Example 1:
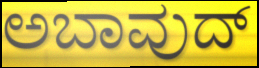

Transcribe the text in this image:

ಅಬಾವುದ್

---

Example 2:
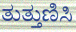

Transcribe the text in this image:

ತುತ್ತುಣಿಸಿ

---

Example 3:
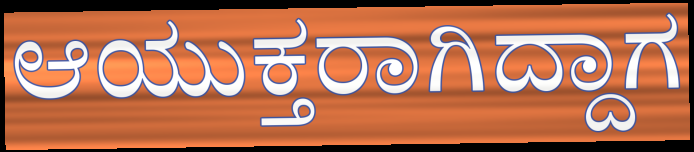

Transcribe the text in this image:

ಆಯುಕ್ತರಾಗಿದ್ದಾಗ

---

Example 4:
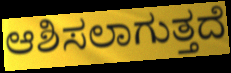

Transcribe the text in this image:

ಆಶಿಸಲಾಗುತ್ತದೆ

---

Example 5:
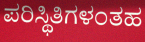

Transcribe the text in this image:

ಪರಿಸ್ಥಿತಿಗಳಂತಹ